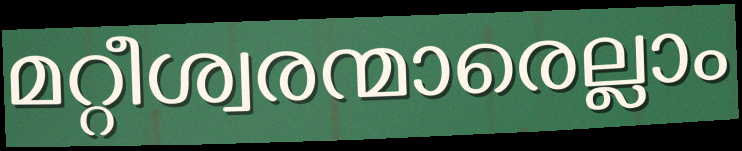
മറ്റീശ്വരന്മാരെല്ലാം